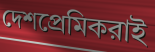
দেশপ্রেমিকরাই